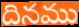
దినము